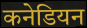
कनेडियन